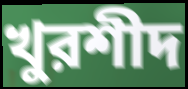
খুরশীদ